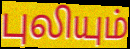
புலியும்